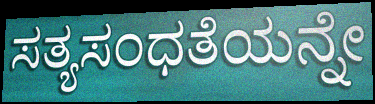
ಸತ್ಯಸಂಧತೆಯನ್ನೇ